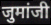
जुमांजी